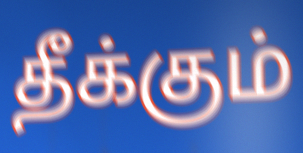
தீக்கும்